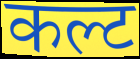
कल्ट